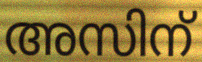
അസിന്